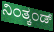
ನಿಂತ್ಕಂಡ್